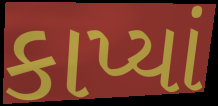
કાપ્યાં